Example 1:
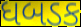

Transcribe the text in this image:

ધબડક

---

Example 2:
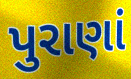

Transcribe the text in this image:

પુરાણાં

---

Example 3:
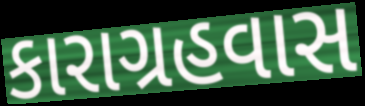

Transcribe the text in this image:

કારાગ્રહવાસ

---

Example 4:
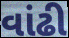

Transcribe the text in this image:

વાંઢી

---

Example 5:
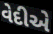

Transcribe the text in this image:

વેદીએ